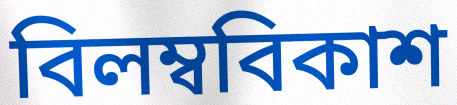
বিলম্ববিকাশ